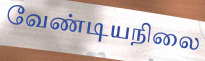
வேண்டியநிலை